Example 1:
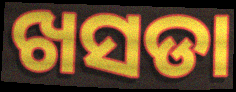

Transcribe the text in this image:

ଖସଡା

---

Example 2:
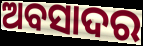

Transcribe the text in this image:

ଅବସାଦର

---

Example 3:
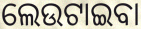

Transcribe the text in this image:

ଲେଉଟାଇବା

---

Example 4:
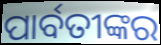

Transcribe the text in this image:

ପାର୍ବତୀଙ୍କର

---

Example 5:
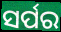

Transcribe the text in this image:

ସର୍ପର